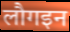
लौगइन